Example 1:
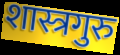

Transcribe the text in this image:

शास्त्रगुरु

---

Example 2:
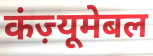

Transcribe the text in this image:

कंज़्यूमेबल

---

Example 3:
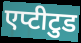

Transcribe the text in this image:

एप्टीटुड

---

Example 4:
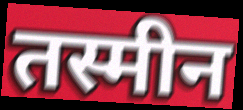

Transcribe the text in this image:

तस्मीन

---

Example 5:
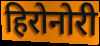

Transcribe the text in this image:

हिरोनोरी